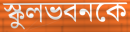
স্কুলভবনকে